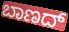
ಬಾಣದ್